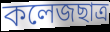
কলেজছাত্র